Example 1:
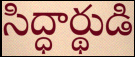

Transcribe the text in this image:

సిద్ధార్థుడి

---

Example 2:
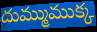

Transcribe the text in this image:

దుమ్ముముక్క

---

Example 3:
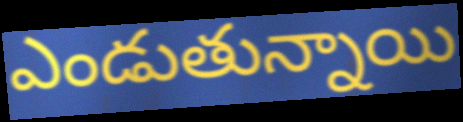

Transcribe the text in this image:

ఎండుతున్నాయి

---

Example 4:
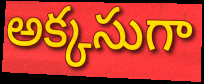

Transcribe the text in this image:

అక్కసుగా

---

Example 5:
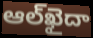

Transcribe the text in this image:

ఆల్‌ఖైదా